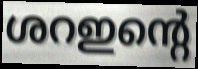
ശറഇന്റെ